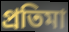
প্রতিমা